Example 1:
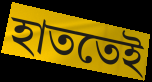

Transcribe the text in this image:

হাততেই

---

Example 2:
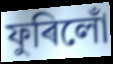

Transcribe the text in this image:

ফুৰিলোঁ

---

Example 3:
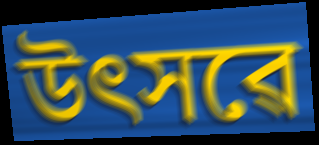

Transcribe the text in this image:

উৎসৱে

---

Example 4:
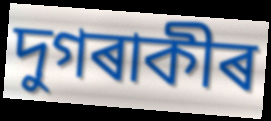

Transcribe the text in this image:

দুগৰাকীৰ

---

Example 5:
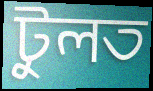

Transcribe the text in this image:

টুলত